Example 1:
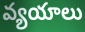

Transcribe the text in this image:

వ్యయాలు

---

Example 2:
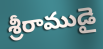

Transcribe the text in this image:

శ్రీరాముడై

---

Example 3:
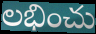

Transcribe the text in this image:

లభించు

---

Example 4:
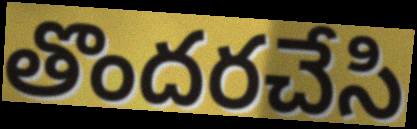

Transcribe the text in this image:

తొందరచేసి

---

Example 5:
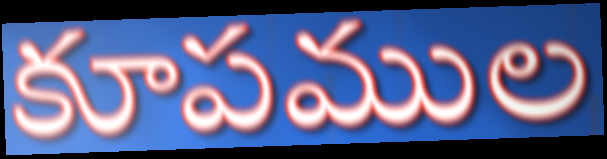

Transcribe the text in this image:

కూపముల